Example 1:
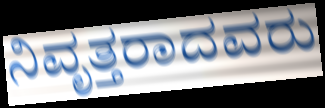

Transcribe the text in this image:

ನಿವೃತ್ತರಾದವರು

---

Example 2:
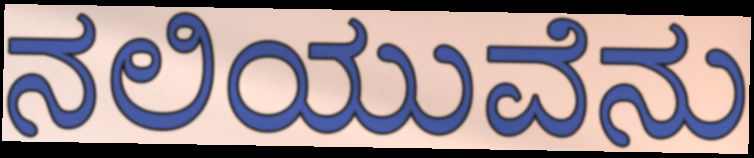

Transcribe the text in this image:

ನಲಿಯುವೆನು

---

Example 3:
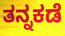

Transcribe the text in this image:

ತನ್ನಕಡೆ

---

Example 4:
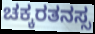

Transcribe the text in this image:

ಚಕ್ಕರತನಸ್ಸ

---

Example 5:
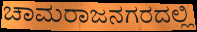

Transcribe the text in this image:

ಚಾಮರಾಜನಗರದಲ್ಲಿ